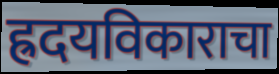
ह्रदयविकाराचा